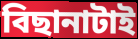
বিছানাটাই